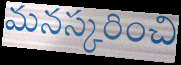
మనస్కరించి